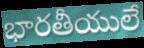
భారతీయులే